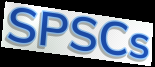
SPSCs